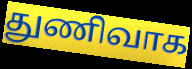
துணிவாக